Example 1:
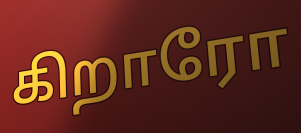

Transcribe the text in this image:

கிறாரோ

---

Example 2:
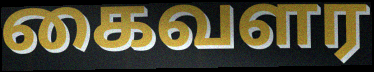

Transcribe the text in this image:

கைவளர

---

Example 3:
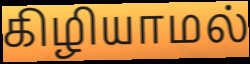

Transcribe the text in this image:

கிழியாமல்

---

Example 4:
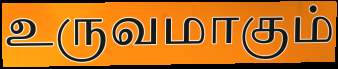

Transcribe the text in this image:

உருவமாகும்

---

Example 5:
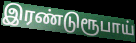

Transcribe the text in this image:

இரண்டுரூபாய்